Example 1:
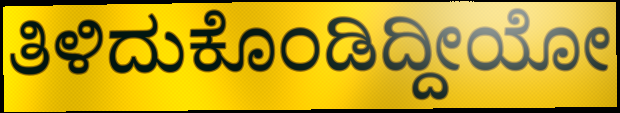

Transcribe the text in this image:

ತಿಳಿದುಕೊಂಡಿದ್ದೀಯೋ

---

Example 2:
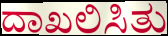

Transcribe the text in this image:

ದಾಖಲಿಸಿತು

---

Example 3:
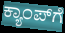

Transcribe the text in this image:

ಕ್ಯಾಂಪ್‍ಗೆ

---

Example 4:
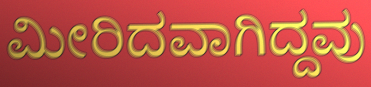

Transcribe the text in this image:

ಮೀರಿದವಾಗಿದ್ದವು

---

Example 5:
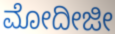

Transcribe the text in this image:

ಮೋದೀಜೀ